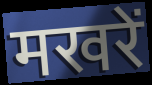
मखरें